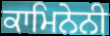
ਕਾਮਿਨੇਨੀ